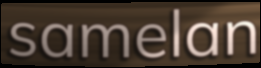
samelan